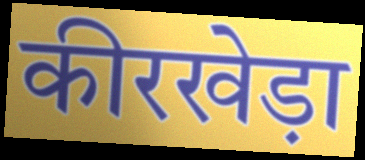
कीरखेड़ा